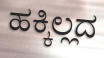
ಹಕ್ಕಿಲ್ಲದ